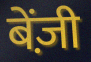
बेंज़ी